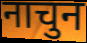
नाचुन